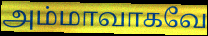
அம்மாவாகவே